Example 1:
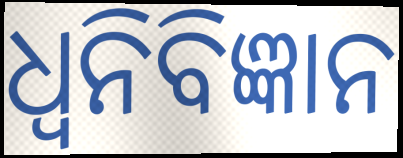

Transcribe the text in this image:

ଧ୍ୱନିବିଜ୍ଞାନ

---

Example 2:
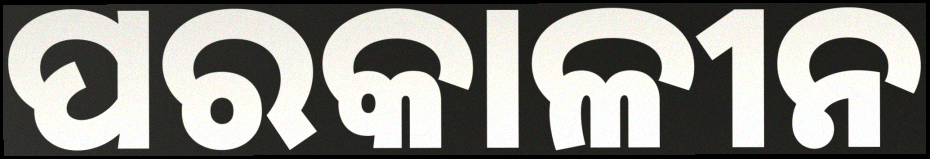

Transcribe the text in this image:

ପରକାଳୀନ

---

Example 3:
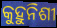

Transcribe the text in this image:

କୁହୁନିଶୀ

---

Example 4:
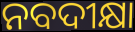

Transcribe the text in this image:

ନବଦୀକ୍ଷା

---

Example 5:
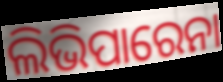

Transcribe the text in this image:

ଲିଭିପାରେନା